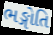
ભઙ્ગોતિ